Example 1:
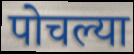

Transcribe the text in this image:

पोचल्या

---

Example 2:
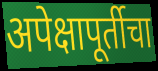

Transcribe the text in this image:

अपेक्षापूर्तीचा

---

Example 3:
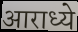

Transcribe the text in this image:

आराध्ये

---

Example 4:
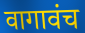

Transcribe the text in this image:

वागावंच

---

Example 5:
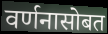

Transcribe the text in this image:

वर्णनासोबत